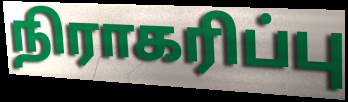
நிராகரிப்பு